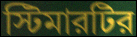
স্টিমারটির